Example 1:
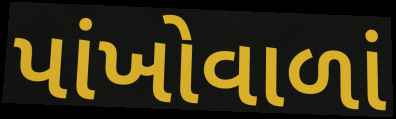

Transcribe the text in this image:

પાંખોવાળાં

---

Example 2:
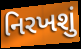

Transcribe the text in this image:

નિરખશું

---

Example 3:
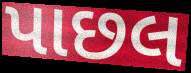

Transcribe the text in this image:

પાછલ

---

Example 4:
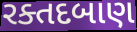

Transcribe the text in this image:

રક્તદબાણ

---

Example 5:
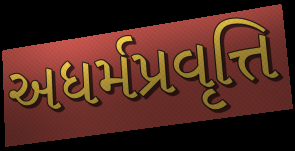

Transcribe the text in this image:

અધર્મપ્રવૃત્તિ